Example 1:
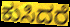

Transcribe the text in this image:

ಕುಸಿದರೆ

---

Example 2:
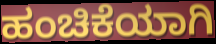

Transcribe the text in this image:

ಹಂಚಿಕೆಯಾಗಿ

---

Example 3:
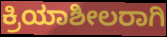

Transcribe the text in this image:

ಕ್ರಿಯಾಶೀಲರಾಗಿ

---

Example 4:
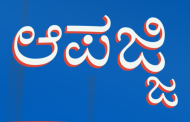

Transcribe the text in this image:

ಆಪಜ್ಜಿ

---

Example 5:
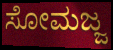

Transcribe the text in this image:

ಸೋಮಜ್ಜ